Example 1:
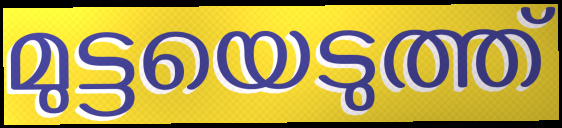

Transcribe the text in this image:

മുട്ടയെടുത്ത്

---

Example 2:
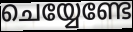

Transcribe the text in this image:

ചെയ്യേണ്ടേ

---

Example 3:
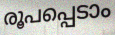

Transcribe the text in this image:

രൂപപ്പെടാം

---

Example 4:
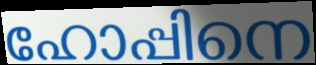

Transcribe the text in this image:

ഹോപ്പിനെ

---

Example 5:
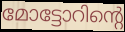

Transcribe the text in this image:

മോട്ടോറിന്റെ